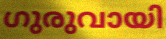
ഗുരുവായി